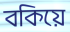
বকিয়ে